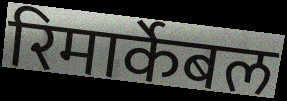
रिमार्केबल